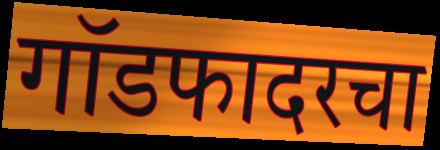
गॉडफादरचा